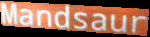
Mandsaur